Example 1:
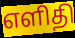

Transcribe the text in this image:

எளிதி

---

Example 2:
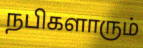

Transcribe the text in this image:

நபிகளாரும்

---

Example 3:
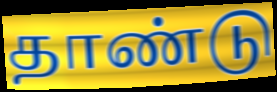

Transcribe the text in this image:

தாண்டு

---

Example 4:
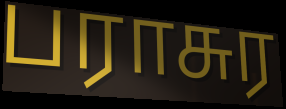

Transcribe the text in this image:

பராசுர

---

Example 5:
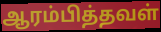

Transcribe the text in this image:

ஆரம்பித்தவள்